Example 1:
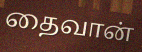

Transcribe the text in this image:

தைவான்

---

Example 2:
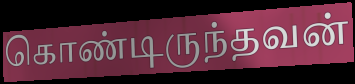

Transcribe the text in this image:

கொண்டிருந்தவன்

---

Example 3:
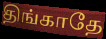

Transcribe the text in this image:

திங்காதே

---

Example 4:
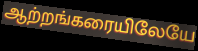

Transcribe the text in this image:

ஆற்றங்கரையிலேயே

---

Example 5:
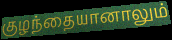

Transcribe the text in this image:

குழந்தையானாலும்